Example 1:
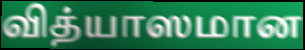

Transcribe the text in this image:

வித்யாஸமான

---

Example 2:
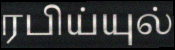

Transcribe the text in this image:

ரபிய்யுல்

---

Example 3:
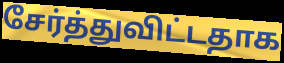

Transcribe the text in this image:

சேர்த்துவிட்டதாக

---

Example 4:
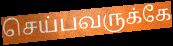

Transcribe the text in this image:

செய்பவருக்கே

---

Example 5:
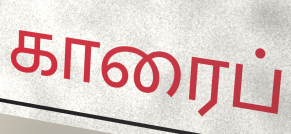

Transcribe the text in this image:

காரைப்